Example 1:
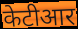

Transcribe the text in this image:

केटीआर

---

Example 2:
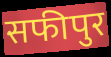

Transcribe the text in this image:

सफीपुर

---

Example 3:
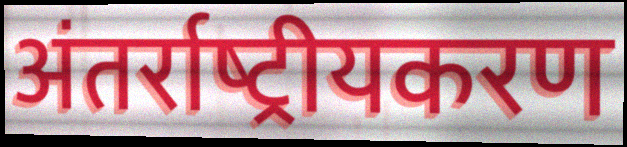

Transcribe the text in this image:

अंतर्राष्ट्रीयकरण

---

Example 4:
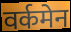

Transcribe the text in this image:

वर्कमेन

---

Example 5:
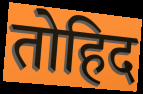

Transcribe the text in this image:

तोहिद